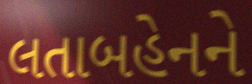
લતાબહેનને